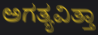
ಅಗತ್ಯವಿತ್ತಾ